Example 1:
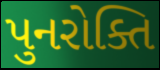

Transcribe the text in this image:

પુનરોક્તિ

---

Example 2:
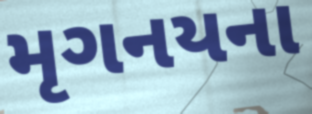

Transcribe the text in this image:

મૃગનયના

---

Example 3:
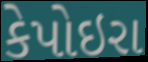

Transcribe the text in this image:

કેપોઇરા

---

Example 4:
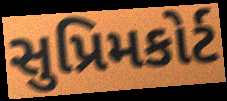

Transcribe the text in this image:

સુપ્રિમકોર્ટ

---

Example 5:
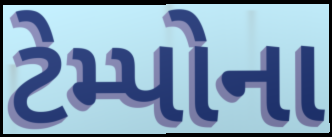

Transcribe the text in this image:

ટેમ્પોના